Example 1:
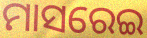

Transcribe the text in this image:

ମାସରେଇ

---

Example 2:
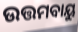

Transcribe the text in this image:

ଉତ୍ତମବାୟୁ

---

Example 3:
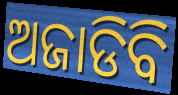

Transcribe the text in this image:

ଅଜାଡିବି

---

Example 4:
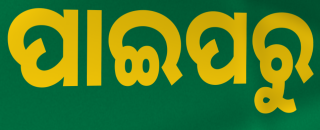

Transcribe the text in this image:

ପାଇପରୁ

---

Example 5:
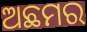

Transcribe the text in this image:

ଅଛମର